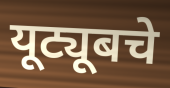
यूट्यूबचे